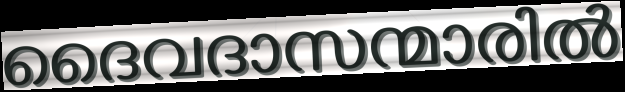
ദൈവദാസന്മാരിൽ